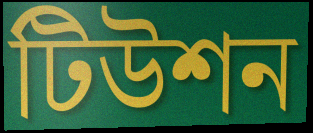
টিউশন